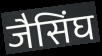
जैसिंघ